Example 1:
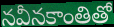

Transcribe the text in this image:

నవీనకాంతితో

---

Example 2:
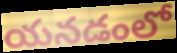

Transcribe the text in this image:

యనడంలో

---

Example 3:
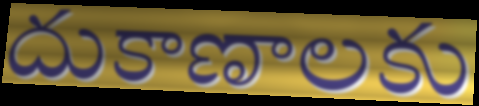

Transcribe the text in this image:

దుకాణాలకు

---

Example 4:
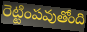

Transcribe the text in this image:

రెట్టింపవుతోంది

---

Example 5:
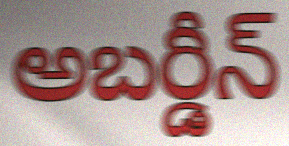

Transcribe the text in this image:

అబర్డీన్